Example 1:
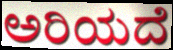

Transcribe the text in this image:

ಅರಿಯದೆ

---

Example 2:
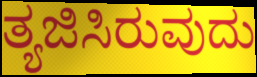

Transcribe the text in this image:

ತ್ಯಜಿಸಿರುವುದು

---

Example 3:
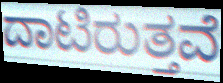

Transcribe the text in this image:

ದಾಟಿರುತ್ತವೆ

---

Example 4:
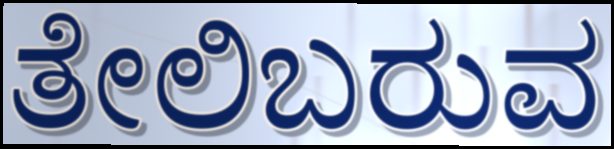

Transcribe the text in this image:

ತೇಲಿಬರುವ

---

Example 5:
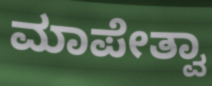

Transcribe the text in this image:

ಮಾಪೇತ್ವಾ